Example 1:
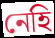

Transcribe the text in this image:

নেহি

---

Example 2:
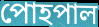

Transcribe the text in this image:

পোহপাল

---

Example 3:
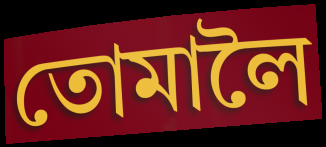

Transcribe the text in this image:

তোমালৈ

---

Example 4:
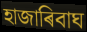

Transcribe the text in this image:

হাজাৰিবাঘ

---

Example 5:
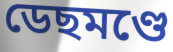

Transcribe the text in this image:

ডেছমণ্ডে